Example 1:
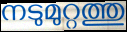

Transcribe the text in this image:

നടുമുറ്റത്തു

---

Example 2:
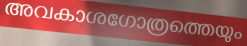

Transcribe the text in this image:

അവകാശഗോത്രത്തെയും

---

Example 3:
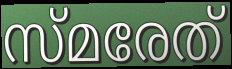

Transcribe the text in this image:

സ്മരേത്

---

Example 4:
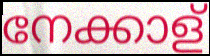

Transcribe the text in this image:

നേക്കാള്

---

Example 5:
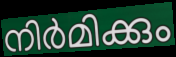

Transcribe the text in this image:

നിർമിക്കും